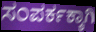
ಸಂಪರ್ಕಕ್ಕಾಗಿ